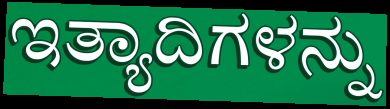
ಇತ್ಯಾದಿಗಳನ್ನು